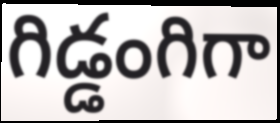
గిడ్డంగిగా